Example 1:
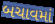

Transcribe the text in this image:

બચાવમાં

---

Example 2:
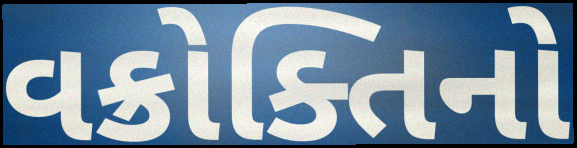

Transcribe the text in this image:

વક્રોક્તિનો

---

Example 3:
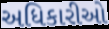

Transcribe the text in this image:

અધિકારીઓ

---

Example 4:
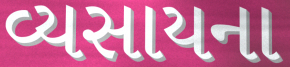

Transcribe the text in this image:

વ્યસાયના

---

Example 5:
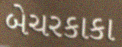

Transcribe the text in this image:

બેચરકાકા